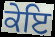
ਕੇਇ